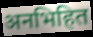
अनभिहित